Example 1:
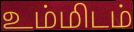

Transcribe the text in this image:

உம்மிடம்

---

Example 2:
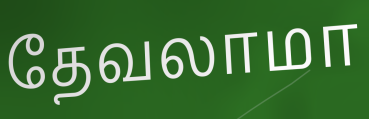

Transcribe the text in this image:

தேவலாமா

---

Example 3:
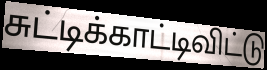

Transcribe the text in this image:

சுட்டிக்காட்டிவிட்டு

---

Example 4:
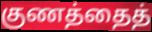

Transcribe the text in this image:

குணத்தைத்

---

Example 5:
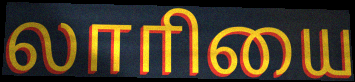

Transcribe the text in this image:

லாரியை